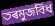
তৰমুজবিধ